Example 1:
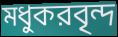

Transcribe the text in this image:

মধুকরবৃন্দ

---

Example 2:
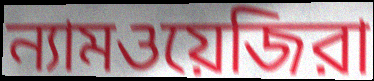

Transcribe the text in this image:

ন্যামওয়েজিরা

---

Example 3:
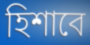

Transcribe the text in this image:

হিশাবে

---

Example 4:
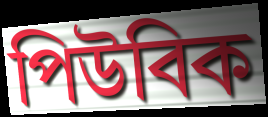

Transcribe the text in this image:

পিউবিক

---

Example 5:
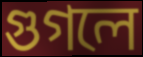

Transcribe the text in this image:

গুগলে